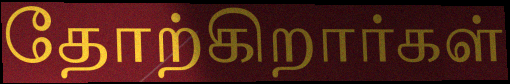
தோற்கிறார்கள்